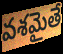
వశమైతే